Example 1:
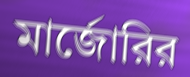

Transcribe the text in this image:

মার্জোরির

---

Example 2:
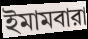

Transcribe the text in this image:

ইমামবারা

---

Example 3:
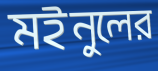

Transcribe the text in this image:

মইনুলের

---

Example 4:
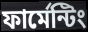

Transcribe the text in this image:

ফার্মেন্টিং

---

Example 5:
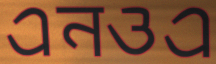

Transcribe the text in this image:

এনওএ